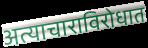
अत्याचाराविरोधात